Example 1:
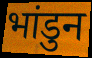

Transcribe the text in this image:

भांडुन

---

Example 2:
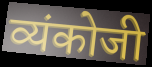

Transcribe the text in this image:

व्यंकोजी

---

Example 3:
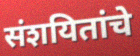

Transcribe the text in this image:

संशयितांचे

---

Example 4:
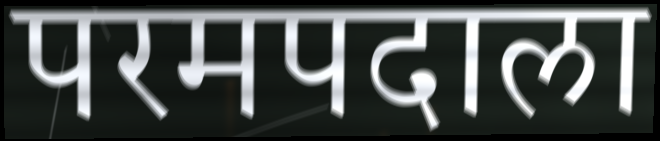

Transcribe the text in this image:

परमपदाला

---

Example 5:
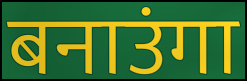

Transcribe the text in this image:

बनाउंगा